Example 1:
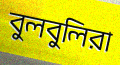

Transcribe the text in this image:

বুলবুলিরা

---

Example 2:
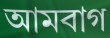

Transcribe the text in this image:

আমবাগ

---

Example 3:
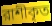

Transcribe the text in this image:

রাশীকৃত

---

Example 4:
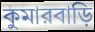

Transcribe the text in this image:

কুমারবাড়ি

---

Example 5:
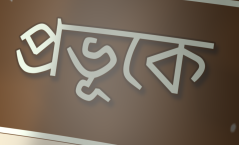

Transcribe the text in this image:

প্রভূকে